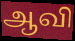
ஆவி